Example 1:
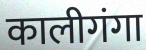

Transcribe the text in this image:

कालीगंगा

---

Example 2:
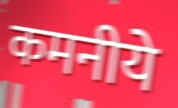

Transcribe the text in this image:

कमनीये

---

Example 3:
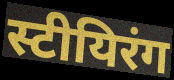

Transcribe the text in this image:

स्टीयिरंग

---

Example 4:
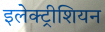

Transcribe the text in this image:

इलेक्‍ट्रीशियन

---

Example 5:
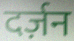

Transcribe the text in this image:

दर्ज़न